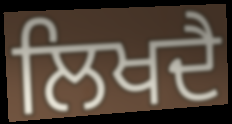
ਲਿਖਦੈ